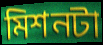
মিশনটা